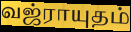
வஜ்ராயுதம்